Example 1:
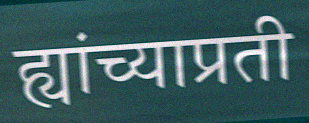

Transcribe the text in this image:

ह्यांच्याप्रती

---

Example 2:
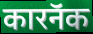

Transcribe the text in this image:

कारनॅक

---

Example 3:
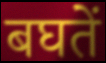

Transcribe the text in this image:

बघतें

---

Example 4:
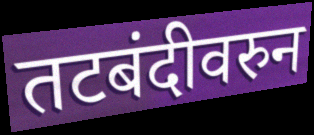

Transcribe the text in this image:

तटबंदीवरुन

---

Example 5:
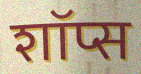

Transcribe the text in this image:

शॉप्स